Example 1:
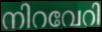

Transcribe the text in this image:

നിറവേറി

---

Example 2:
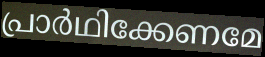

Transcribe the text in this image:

പ്രാർഥിക്കേണമേ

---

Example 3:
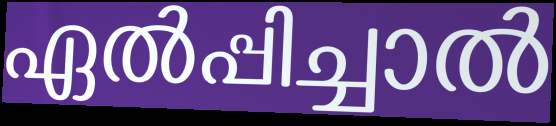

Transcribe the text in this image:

ഏൽപ്പിച്ചാൽ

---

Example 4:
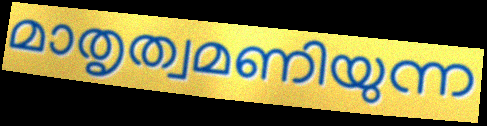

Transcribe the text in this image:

മാതൃത്വമണിയുന്ന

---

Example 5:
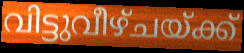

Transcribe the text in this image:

വിട്ടുവീഴ്ചയ്ക്ക്